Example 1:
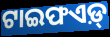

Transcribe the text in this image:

ଟାଇଫଏଡ଼୍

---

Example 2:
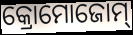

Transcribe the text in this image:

କ୍ରୋମୋଜୋମ୍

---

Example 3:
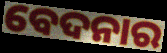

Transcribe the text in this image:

ବେଦନାର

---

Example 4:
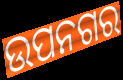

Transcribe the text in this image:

ଉପନଗର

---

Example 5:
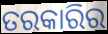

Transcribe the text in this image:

ତରକାରିର